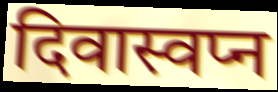
दिवास्‍वप्‍न